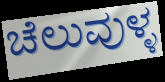
ಚೆಲುವುಳ್ಳ